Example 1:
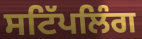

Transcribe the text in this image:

ਸਟਿੱਪਲਿੰਗ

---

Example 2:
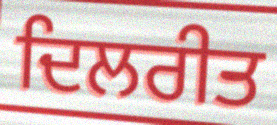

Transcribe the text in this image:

ਦਿਲਰੀਤ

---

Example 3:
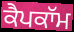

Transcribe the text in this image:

ਕੈਪਕਾੱਮ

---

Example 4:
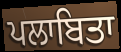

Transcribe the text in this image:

ਪਲਾਬਿਤਾ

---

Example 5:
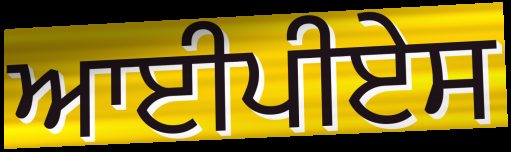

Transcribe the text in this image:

ਆਈਪੀਏਸ